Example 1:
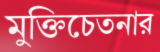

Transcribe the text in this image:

মুক্তিচেতনার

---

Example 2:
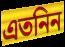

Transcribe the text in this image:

এতনিন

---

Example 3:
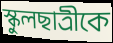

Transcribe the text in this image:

স্কুলছাত্রীকে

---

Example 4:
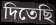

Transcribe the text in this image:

দিতেছি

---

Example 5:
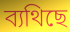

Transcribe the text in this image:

ব্যথিছে